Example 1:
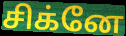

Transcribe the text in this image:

சிக்னே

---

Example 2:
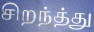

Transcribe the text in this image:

சிறந்த்து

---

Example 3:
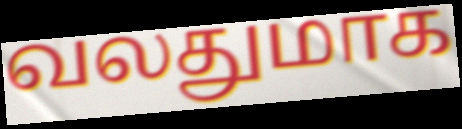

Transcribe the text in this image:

வலதுமாக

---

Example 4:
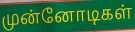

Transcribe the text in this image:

முன்னோடிகள்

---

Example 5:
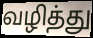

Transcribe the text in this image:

வழித்து